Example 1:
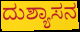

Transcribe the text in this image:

ದುಶ್ಯಾಸನ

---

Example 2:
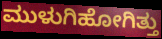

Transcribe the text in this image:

ಮುಳುಗಿಹೋಗಿತ್ತು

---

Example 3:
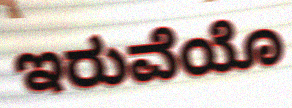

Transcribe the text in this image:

ಇರುವೆಯೊ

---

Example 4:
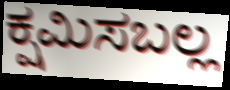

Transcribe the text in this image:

ಕ್ಷಮಿಸಬಲ್ಲ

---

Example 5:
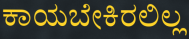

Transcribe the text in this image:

ಕಾಯಬೇಕಿರಲಿಲ್ಲ